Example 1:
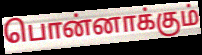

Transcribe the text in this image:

பொன்னாக்கும்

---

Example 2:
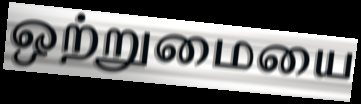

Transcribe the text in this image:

ஒற்றுமையை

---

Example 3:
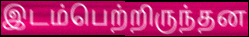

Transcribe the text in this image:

இடம்பெற்றிருந்தன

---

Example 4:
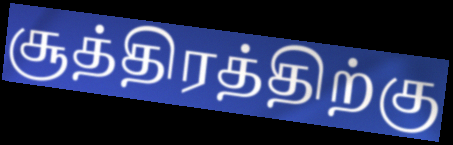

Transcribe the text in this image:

சூத்திரத்திற்கு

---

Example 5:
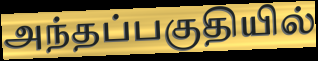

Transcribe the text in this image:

அந்தப்பகுதியில்